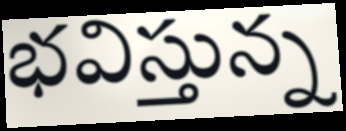
భవిస్తున్న